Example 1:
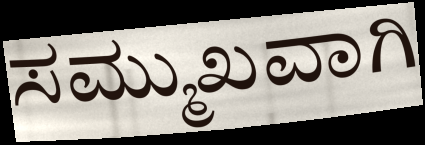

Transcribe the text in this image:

ಸಮ್ಮುಖವಾಗಿ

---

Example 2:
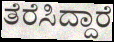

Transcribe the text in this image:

ತೆರೆಸಿದ್ದಾರೆ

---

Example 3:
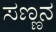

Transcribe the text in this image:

ಸಣ್ಣನ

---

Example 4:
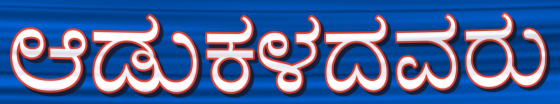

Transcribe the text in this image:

ಆಡುಕಳದವರು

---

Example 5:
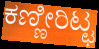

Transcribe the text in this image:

ಕಣ್ಣೀರಿಟ್ಟ